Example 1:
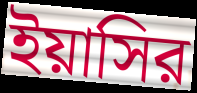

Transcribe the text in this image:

ইয়াসির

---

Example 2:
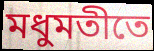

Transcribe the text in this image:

মধুমতীতে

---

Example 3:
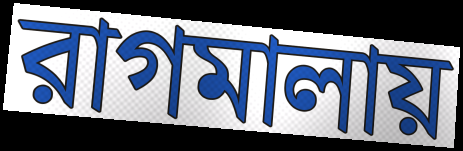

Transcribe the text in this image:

রাগমালায়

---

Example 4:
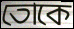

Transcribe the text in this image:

তোকে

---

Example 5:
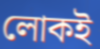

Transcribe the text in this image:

লোকই